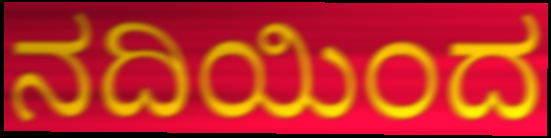
ನದಿಯಿಂದ